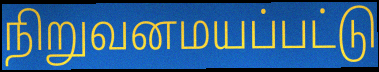
நிறுவனமயப்பட்டு